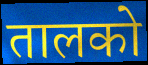
तालको